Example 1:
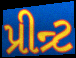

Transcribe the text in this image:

પ્રીન્ર્ટ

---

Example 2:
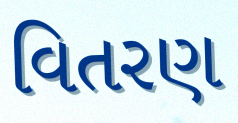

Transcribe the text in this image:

વિતરણ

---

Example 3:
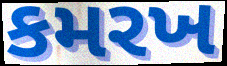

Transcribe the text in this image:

કમરખ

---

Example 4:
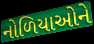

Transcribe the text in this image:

નોળિયાઓને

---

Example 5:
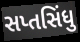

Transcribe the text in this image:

સપ્તસિંધુ